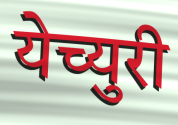
येच्युरी